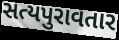
સત્યપુરાવતાર